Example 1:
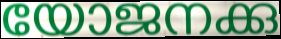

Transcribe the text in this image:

യോജനക്കു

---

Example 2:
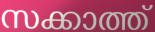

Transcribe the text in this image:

സക്കാത്ത്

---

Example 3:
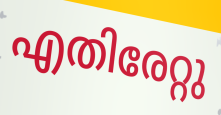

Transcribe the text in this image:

എതിരേറ്റു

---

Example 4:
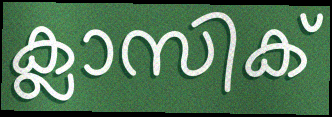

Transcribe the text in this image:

ക്ലാസിക്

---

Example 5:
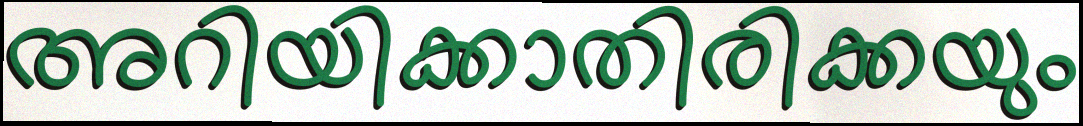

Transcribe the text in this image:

അറിയിക്കാതിരിക്കയും